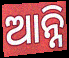
ଆନ୍ନି